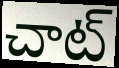
చాట్